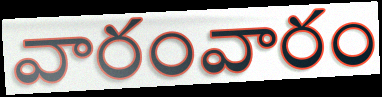
వారంవారం